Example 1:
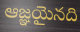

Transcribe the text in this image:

ఆజ్ఞయైనది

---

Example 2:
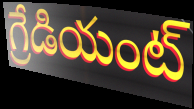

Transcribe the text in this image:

గ్రేడియంట్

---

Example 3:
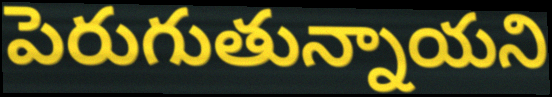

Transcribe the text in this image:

పెరుగుతున్నాయని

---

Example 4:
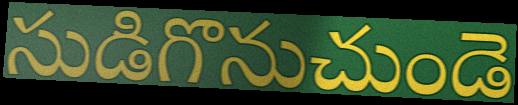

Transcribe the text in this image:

సుడిగొనుచుండె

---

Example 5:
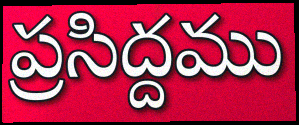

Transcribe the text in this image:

ప్రసిద్దము